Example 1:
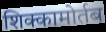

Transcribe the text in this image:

शिक्कामोर्तब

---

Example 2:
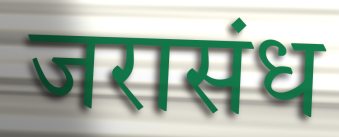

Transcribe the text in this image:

जरासंध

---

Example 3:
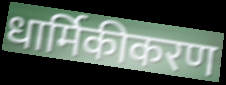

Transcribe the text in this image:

धार्मिकीकरण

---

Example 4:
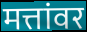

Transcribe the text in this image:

मत्तांवर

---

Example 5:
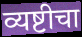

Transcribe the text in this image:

व्यष्टीचा